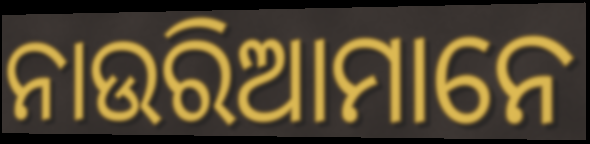
ନାଉରିଆମାନେ